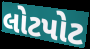
લોટપોટ